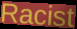
Racist